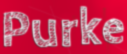
Purke